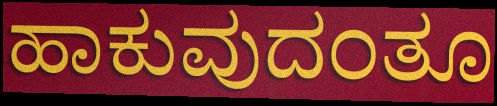
ಹಾಕುವುದಂತೂ